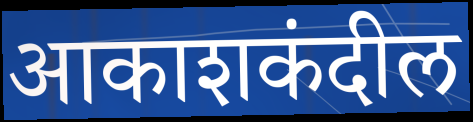
आकाशकंदील